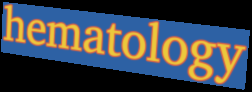
hematology